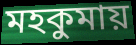
মহকুমায়